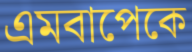
এমবাপেকে